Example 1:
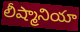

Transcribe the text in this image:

లీష్మానియా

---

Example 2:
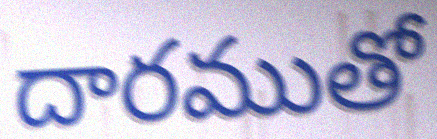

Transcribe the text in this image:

దారముతో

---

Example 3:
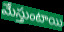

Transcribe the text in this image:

మేస్తుంటాయి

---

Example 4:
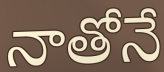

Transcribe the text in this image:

నాతోనే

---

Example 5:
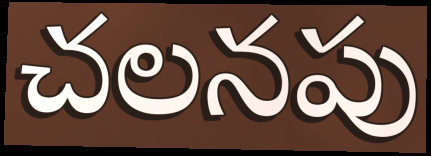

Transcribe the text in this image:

చలనపు